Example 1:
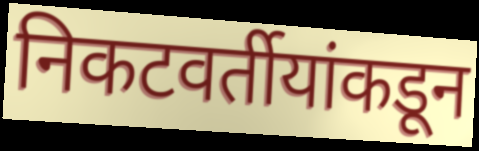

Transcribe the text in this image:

निकटवर्तीयांकडून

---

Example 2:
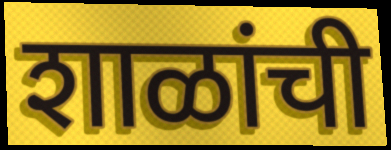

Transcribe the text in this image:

शाळांची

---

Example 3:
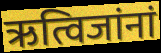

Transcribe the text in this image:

ऋत्विजांनां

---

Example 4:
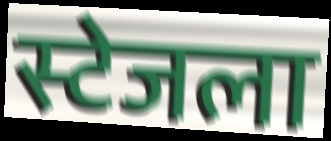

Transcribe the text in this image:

स्टेजला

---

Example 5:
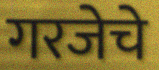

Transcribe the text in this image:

गरजेचे